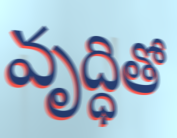
వృద్ధితో